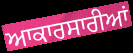
ਆਕਾਰਸਾਰੀਆਂ